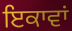
ਇਕਾਵਾਂ